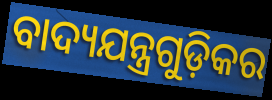
ବାଦ୍ୟଯନ୍ତ୍ରଗୁଡ଼ିକର